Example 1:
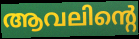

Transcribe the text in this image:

ആവലിന്റെ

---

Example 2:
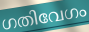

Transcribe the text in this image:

ഗതിവേഗം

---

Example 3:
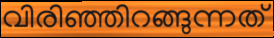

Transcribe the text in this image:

വിരിഞ്ഞിറങ്ങുന്നത്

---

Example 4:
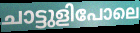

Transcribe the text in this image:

ചാട്ടുളിപോലെ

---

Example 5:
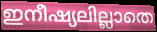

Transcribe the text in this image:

ഇനീഷ്യലില്ലാതെ